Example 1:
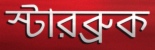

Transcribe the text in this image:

স্টারব্রুক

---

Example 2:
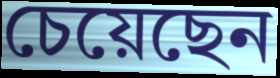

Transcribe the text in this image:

চেয়েছেন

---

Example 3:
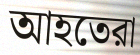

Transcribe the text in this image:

আহতেরা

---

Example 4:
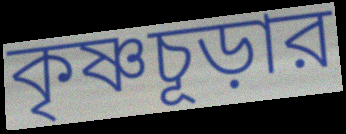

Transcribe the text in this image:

কৃষ্ণচূড়ার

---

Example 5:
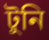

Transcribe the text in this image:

টুনি